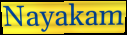
Nayakam